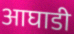
आघाडी